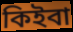
কিইবা